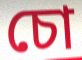
চো